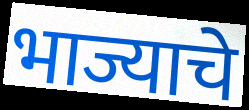
भाज्याचे